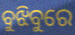
ବୁଝିବୁରେ